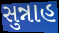
સુન્નાહ